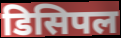
डिसिपल